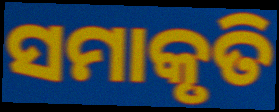
ସମାକୃତି